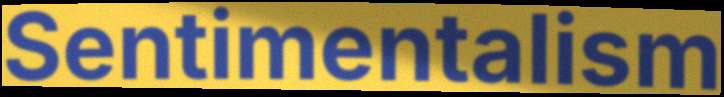
Sentimentalism